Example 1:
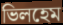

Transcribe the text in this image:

ভিলহেম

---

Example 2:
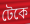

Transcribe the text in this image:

টেকে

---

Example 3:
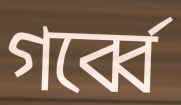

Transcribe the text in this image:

গর্ব্বে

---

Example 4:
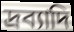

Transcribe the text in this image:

দ্রব্যাদি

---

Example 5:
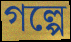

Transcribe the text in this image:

গল্পে